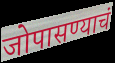
जोपासण्याचं